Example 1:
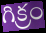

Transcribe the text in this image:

గిక్రం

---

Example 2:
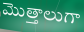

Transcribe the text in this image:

మొత్తాలుగా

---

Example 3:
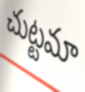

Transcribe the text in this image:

చుట్టమా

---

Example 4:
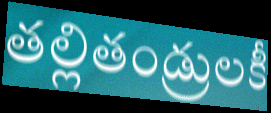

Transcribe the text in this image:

తల్లితండ్రులకీ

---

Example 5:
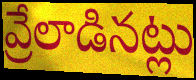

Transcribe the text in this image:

వ్రేలాడినట్లు